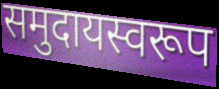
समुदायस्वरूप